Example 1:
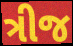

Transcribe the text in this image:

ત્રીજ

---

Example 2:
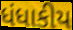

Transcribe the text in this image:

ધંધાકીય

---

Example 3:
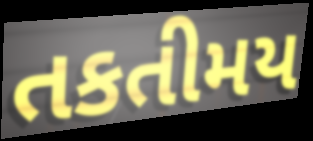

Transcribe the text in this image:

તકતીમય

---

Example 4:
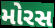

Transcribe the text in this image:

મોરસ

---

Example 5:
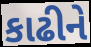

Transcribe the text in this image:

કાઢીને